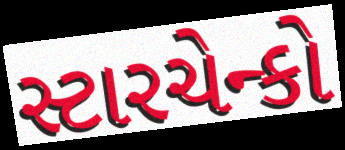
સ્ટારચેન્કો